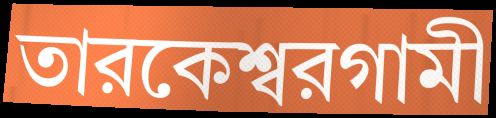
তারকেশ্বরগামী